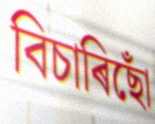
বিচাৰিছোঁ